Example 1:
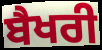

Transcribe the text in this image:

ਬੈਖਰੀ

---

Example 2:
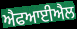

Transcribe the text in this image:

ਐਫਆਈਐਲ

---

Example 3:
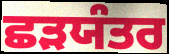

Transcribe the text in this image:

ਛੜਯੰਤਰ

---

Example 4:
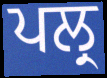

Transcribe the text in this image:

ਪਲ੍ਰ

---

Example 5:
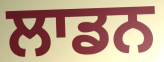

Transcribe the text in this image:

ਲਾਡਨ